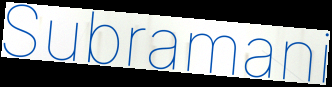
Subramani